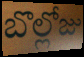
బొల్లోజు